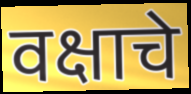
वक्षाचे